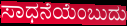
ಸಾಧನೆಯೆಂಬುದು